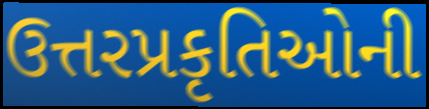
ઉત્તરપ્રકૃતિઓની